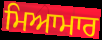
ਮਿਆਮਾਰ